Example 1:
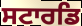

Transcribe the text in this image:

ਸਟਾਰਡਿ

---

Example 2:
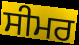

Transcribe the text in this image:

ਸੀਮਰ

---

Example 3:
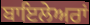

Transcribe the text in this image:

ਬਾਇਲੇਅਰਾਂ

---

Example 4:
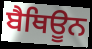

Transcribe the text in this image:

ਬੈਥਿਊਨ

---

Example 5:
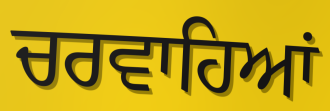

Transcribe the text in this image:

ਚਰਵਾਹਿਆਂ